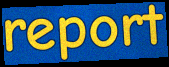
report